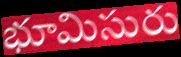
భూమిసురు